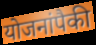
योजनांपैकी